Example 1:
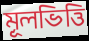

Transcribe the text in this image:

মূলভিত্তি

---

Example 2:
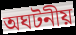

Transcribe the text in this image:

অঘটনীয়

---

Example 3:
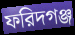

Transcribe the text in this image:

ফরিদগঞ্জ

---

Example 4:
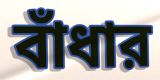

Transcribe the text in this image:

বাঁধার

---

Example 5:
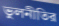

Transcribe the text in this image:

ভুলনীতির